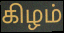
கிழம்